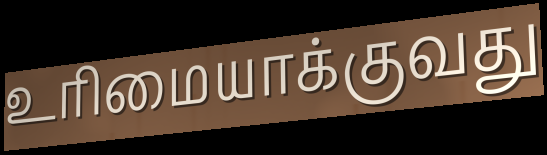
உரிமையாக்குவது